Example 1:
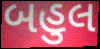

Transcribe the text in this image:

બહુલ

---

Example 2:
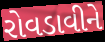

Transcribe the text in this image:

રોવડાવીને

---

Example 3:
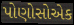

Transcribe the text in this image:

પોણોસોએક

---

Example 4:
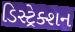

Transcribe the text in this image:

ડિસ્ટ્રેક્શન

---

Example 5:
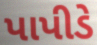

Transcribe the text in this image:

પાપીડે